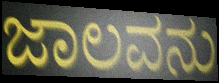
ಜಾಲವನು